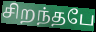
சிறந்தபே